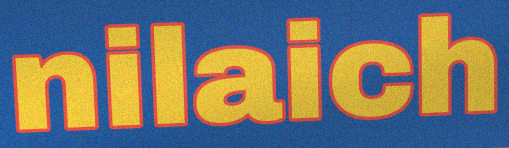
nilaich